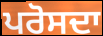
ਪਰੋਸਦਾ